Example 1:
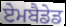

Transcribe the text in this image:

ਏਮਬੈਡੇਡ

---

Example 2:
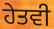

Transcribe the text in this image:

ਹੇਤਵੀ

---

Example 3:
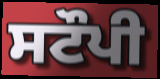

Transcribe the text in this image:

ਸਟੌਪੀ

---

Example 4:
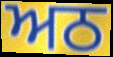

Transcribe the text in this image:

ਅਠ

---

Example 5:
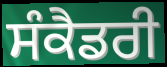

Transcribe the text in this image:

ਸੰਕੈਡਰੀ